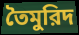
তৈমুরিদ